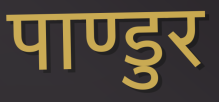
पाण्डुर